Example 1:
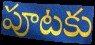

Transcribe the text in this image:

పూటకు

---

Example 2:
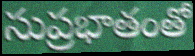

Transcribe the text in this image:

సుప్రభాతంతో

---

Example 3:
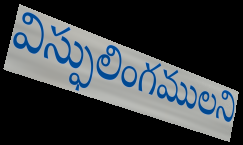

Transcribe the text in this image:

విస్ఫులింగములని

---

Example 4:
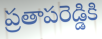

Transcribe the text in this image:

ప్రతాపరెడ్డికి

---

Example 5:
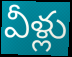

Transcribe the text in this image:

వీళ్లు